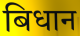
बिधान